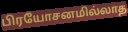
பிரயோசனமில்லாத